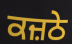
ਕਜ਼ਠੇ